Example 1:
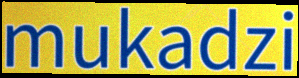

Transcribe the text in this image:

mukadzi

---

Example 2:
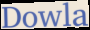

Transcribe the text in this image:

Dowla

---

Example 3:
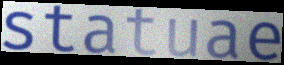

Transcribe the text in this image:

statuae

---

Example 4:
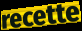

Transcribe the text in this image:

recette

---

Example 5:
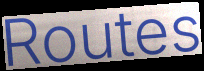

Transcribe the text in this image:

Routes